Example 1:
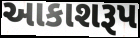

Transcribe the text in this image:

આકાશરૂપ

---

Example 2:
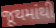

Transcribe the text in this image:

જૂથમાંથી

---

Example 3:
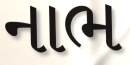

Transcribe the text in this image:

નાભ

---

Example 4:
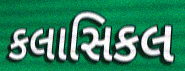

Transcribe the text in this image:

કલાસિકલ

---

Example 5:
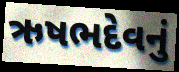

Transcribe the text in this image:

ઋષભદેવનું